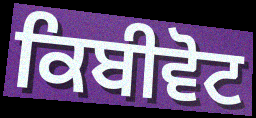
ਕਿਬੀਵੋਟ